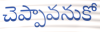
చెప్పావనుకో